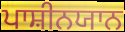
ਪਾਸ਼ੀਨਯਾਨ